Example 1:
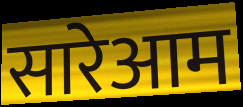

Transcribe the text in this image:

सारेआम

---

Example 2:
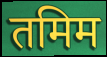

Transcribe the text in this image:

तमिम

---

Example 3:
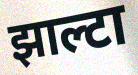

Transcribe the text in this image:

झाल्टा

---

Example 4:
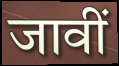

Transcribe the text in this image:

जावीं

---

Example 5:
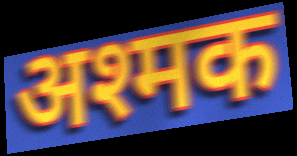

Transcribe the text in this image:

अश्मक